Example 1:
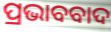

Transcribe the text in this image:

ପ୍ରଭାବବାଦ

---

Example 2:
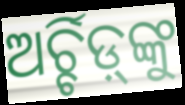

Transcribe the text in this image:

ଅର୍ଚ୍ଚିଡ଼୍‌ଙ୍କୁ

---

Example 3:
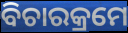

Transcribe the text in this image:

ବିଚାରକ୍ରମେ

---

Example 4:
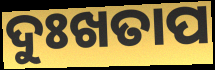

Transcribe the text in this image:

ଦୁଃଖତାପ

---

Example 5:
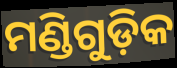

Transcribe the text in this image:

ମଣ୍ଡିଗୁଡ଼ିକ